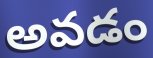
అవడం